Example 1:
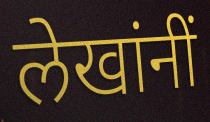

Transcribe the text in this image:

लेखांनीं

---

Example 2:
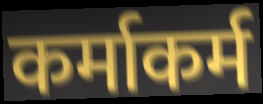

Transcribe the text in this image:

कर्माकर्म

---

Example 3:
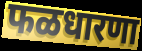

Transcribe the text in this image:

फळधारणा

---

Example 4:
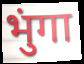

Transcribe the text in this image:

भुंगा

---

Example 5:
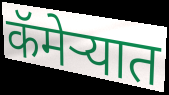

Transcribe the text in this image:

कॅमेऱ्यात